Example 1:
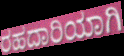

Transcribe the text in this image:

ರಹದಾರಿಯಾಗಿ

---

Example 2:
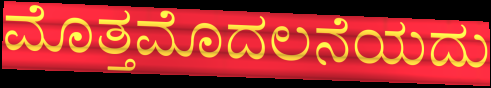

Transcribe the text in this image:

ಮೊತ್ತಮೊದಲನೆಯದು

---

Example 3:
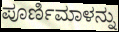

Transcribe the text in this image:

ಪೂರ್ಣಿಮಾಳನ್ನು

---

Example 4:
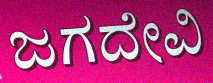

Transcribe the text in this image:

ಜಗದೇವಿ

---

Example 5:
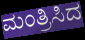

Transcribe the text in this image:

ಮಂತ್ರಿಸಿದ